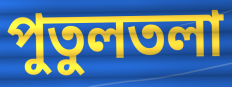
পুতুলতলা